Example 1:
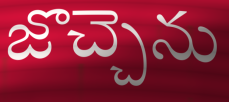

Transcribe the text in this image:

జొచ్చెను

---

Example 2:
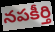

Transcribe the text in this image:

నపకీర్తి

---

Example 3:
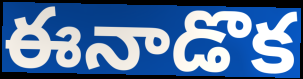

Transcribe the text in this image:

ఈనాడొక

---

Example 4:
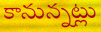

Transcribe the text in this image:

కానున్నట్లు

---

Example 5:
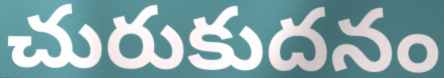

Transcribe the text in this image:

చురుకుదనం